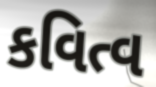
કવિત્વ